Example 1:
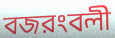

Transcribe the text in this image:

বজরংবলী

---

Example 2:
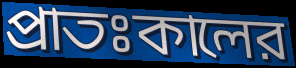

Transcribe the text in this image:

প্রাতঃকালের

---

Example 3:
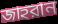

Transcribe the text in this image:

জাহরান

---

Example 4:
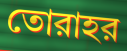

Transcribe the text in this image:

তোরাহর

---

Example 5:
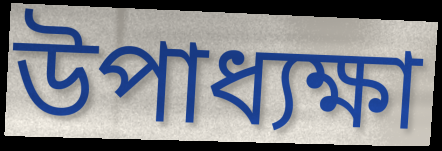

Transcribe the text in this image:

উপাধ্যক্ষা